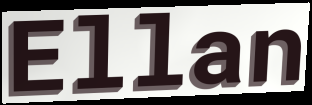
Ellan